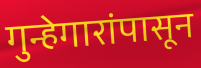
गुन्हेगारांपासून